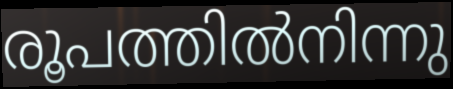
രൂപത്തിൽനിന്നു